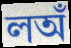
লঅঁ